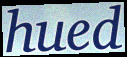
hued